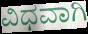
ವಿಧವಾಗಿ